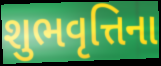
શુભવૃત્તિના